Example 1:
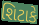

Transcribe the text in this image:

શિટાકે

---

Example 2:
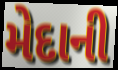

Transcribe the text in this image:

મેદાની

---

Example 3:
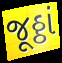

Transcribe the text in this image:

જૂઠ્ઠાં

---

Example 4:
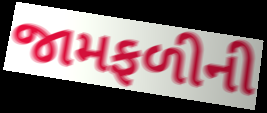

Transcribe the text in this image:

જામફળીની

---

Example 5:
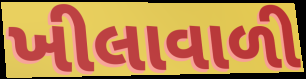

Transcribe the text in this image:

ખીલાવાળી